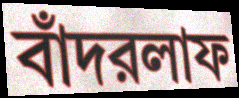
বাঁদরলাফ